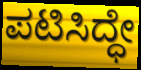
ಪಟಿಸಿದ್ಧೇ